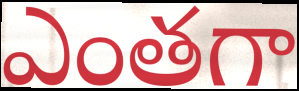
ఎంతగా